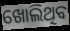
ଖୋଲିଥିବ